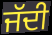
ਜੱਦੀ